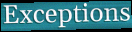
Exceptions